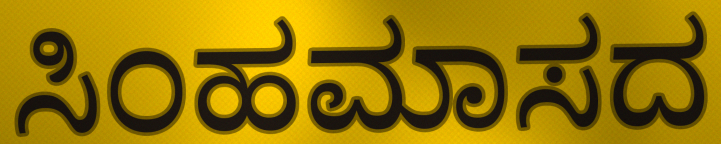
ಸಿಂಹಮಾಸದ